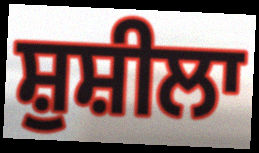
ਸ਼ੁਸ਼ੀਲਾ